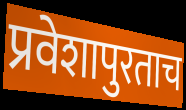
प्रवेशापुरताच